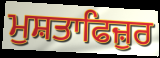
ਮੁਸ਼ਤਾਫਿਜ਼ੁਰ